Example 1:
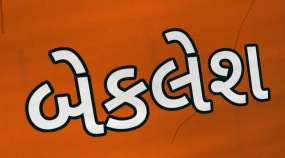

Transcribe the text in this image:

બેકલેશ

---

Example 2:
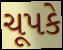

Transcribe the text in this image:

ચૂપકે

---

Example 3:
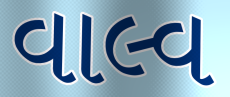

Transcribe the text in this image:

વાલ્વ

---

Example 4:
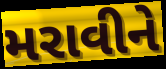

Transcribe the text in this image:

મરાવીને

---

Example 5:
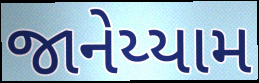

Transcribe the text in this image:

જાનેય્યામ